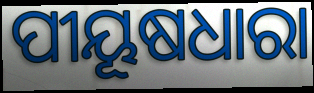
ପୀୟୂଷଧାରା